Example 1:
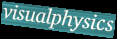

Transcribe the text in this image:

visualphysics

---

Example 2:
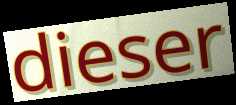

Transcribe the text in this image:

dieser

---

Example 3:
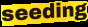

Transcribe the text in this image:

seeding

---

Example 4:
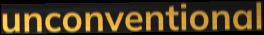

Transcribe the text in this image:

unconventional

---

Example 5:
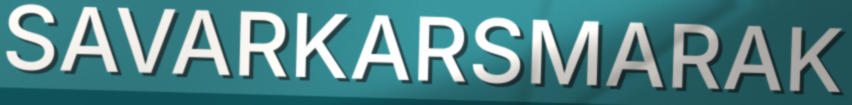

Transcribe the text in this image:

SAVARKARSMARAK